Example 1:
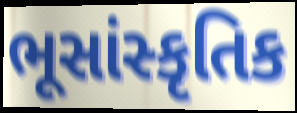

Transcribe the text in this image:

ભૂસાંસ્કૃતિક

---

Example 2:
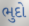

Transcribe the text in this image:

ભુદો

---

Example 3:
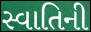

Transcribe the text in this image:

સ્વાતિની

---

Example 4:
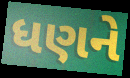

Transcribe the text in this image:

ધણને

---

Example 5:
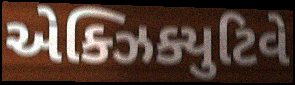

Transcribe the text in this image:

એક્ઝિક્યુટિવે